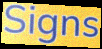
Signs